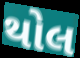
થોલ